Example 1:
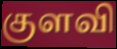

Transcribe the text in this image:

குளவி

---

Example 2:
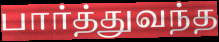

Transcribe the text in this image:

பார்த்துவந்த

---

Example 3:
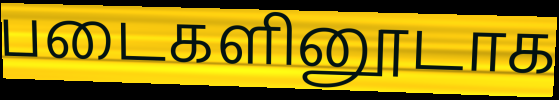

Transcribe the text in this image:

படைகளினூடாக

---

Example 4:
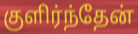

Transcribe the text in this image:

குளிர்ந்தேன்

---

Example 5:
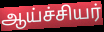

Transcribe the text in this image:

ஆய்ச்சியர்